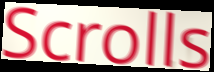
Scrolls